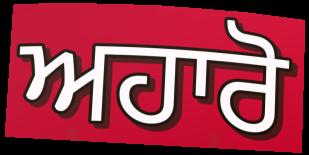
ਅਹਾਰੋ